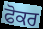
ਫੋਕਰ